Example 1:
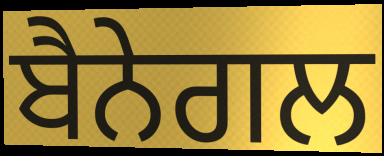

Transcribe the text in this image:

ਬੈਨੇਗਲ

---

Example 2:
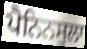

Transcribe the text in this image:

ਪੈਨਿਨਸੁਲਾ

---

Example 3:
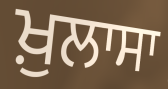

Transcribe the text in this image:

ਖ਼ੁਲਾਸਾ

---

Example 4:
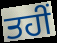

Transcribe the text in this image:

ਤਹੀਂ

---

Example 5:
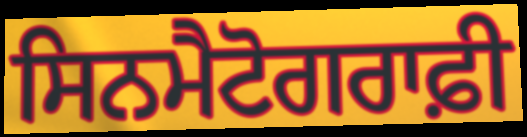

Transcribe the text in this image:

ਸਿਨਮੈਟੋਗਰਾਫ਼ੀ